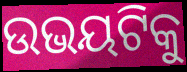
ଉଭୟଟିକୁ